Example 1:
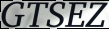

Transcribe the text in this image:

GTSEZ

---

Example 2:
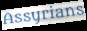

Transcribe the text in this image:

Assyrians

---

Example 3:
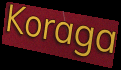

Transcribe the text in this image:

Koraga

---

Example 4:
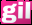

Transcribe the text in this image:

gil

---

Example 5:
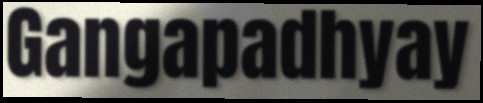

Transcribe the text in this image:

Gangapadhyay